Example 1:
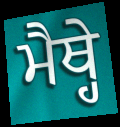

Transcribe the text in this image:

ਮੈਥ੍ਹੇ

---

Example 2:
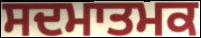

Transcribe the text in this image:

ਸਦਮਾਤਮਕ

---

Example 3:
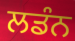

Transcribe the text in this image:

ਲਡੰਨ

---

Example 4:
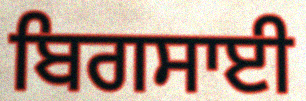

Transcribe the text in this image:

ਬਿਗਸਾਈ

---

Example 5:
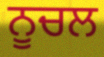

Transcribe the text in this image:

ਨੂਚਲ